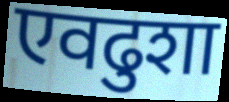
एवढुशा